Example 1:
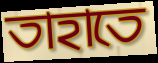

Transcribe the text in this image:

তাহাতে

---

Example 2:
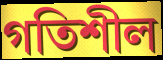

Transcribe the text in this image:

গতিশীল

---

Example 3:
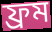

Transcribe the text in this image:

ফ্ৰম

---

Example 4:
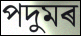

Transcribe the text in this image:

পদুমৰ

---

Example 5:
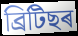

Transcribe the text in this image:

ব্ৰিটিছৰ